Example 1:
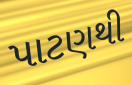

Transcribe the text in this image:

પાટણથી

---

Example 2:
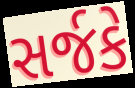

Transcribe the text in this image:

સર્જકે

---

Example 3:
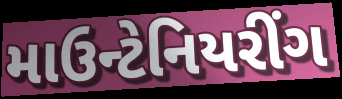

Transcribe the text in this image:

માઉન્ટેનિયરીંગ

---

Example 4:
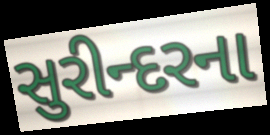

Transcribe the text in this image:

સુરીન્દરના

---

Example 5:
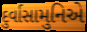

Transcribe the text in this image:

દુર્વાસામુનિએ